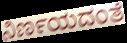
ನಿರ್ಣಯದಂತೆ